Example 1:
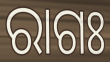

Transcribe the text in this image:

ରାଗଃ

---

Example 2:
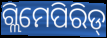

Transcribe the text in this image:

ଗ୍ଲିମେପିରିଡ୍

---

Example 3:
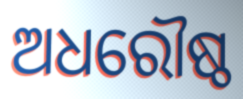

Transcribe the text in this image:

ଅଧରୌଷ୍ଠ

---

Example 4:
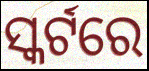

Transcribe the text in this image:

ସ୍କର୍ଟରେ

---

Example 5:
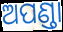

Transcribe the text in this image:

ଅପଣ୍ଡା